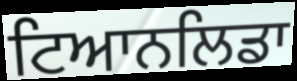
ਟਿਆਨਲਿਡਾ